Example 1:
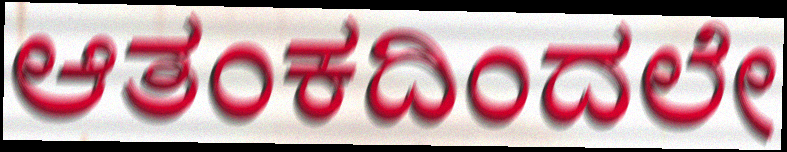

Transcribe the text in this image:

ಆತಂಕದಿಂದಲೇ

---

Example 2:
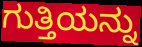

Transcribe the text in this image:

ಗುತ್ತಿಯನ್ನು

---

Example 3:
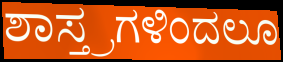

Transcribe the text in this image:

ಶಾಸ್ತ್ರಗಳಿಂದಲೂ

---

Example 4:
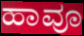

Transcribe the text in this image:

ಹಾವೂ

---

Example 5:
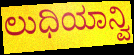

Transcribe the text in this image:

ಲುಧಿಯಾನ್ವಿ